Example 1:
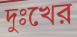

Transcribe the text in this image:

দুঃখের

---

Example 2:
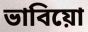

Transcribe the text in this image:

ভাবিয়ো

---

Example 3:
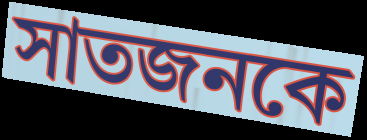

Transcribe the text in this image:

সাতজনকে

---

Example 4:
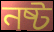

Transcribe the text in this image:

নষ্ট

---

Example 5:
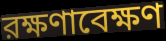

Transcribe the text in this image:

রক্ষণাবেক্ষণ